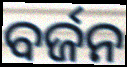
ବର୍ଜନ